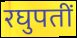
रघुपतीं